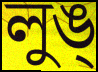
লুঙ্